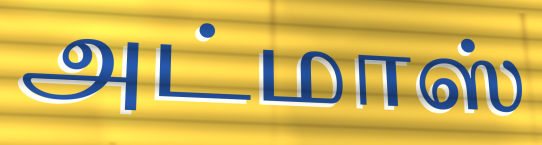
அட்மாஸ்